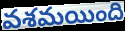
వశమయింది